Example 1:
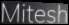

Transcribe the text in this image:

Mitesh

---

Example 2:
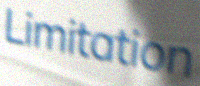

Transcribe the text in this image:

Limitation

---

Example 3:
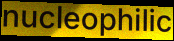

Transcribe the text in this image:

nucleophilic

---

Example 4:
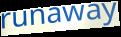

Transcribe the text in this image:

runaway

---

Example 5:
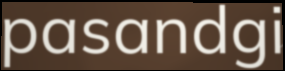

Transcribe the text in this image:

pasandgi